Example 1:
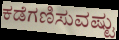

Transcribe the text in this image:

ಕಡೆಗಣಿಸುವಷ್ಟು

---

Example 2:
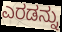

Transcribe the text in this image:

ಎರಡನ್ನು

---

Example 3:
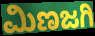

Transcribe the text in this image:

ಮಿಣಜಗಿ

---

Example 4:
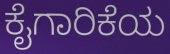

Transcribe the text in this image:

ಕೈಗಾರಿಕೆಯ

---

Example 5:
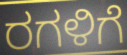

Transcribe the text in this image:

ರಗಳಿಗೆ